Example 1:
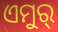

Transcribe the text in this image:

ଏମୁର୍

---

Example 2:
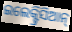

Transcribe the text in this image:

ଇଲେକ୍ଟ୍ରିସିଆନ୍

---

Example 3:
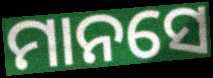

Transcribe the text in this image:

ମାନସେ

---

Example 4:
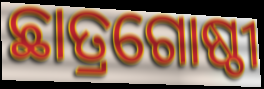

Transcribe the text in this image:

ଛାତ୍ରଗୋଷ୍ଠୀ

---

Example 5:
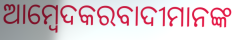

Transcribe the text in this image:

ଆମ୍ବେଦକରବାଦୀମାନଙ୍କ